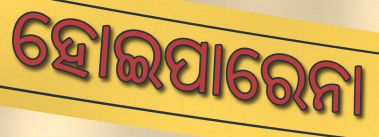
ହୋଇପାରେନା